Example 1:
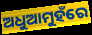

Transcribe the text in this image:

ଅଧୁଆମୁହଁରେ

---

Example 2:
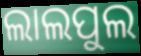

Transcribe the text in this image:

ଲାଲପୁଲ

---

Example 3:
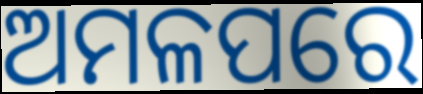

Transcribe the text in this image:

ଅମଳପରେ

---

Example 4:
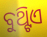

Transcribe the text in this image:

ବୁଥ୍ଟିଏ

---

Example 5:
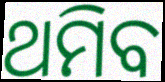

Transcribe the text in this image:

ଥମିବ